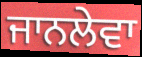
ਜਾਨਲੇਵਾ